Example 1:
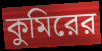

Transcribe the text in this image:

কুমিরের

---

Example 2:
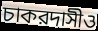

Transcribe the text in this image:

চাকরদাসীও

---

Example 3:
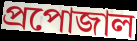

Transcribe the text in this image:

প্রপোজাল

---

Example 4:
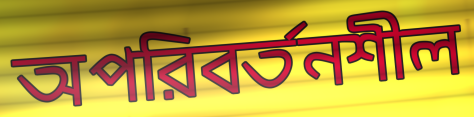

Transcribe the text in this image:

অপরিবর্তনশীল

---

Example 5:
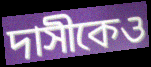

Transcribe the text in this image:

দাসীকেও